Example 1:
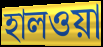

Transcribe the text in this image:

হালওয়া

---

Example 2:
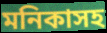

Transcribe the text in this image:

মনিকাসহ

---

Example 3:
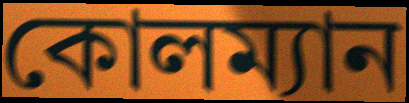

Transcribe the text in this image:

কোলম্যান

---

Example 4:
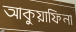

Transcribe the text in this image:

আকুয়াফিনা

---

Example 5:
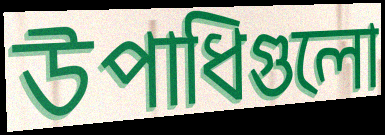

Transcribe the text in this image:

উপাধিগুলো